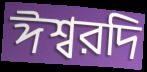
ঈশ্বরদি